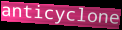
anticyclone